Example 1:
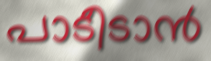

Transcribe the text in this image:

പാടീടാൻ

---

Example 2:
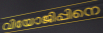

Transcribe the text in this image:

വിയോജിപ്പിനെ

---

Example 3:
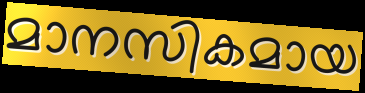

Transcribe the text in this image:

മാനസികമായ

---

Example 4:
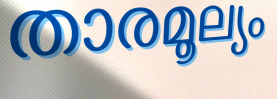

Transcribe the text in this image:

താരമൂല്യം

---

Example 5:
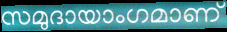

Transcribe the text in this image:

സമുദായാംഗമാണ്